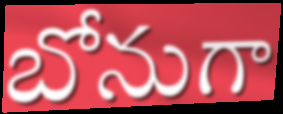
బోనుగా